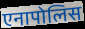
एनापोलिस